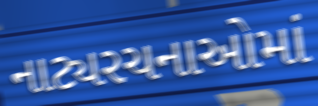
નાટ્યરચનાઓમાં